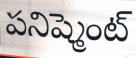
పనిష్మెంట్